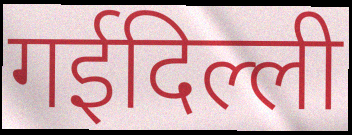
गईदिल्ली